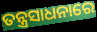
ତନ୍ତ୍ରସାଧନାରେ